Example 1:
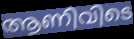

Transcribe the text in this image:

ആണിവിടെ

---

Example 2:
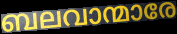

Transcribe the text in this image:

ബലവാന്മാരേ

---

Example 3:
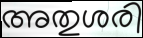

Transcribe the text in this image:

അതുശരി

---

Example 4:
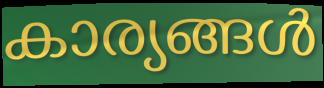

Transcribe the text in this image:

കാര്യങ്ങൾ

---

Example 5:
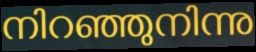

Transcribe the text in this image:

നിറഞ്ഞുനിന്നു